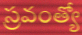
స్రవంత్యో